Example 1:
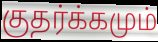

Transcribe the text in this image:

குதர்க்கமும்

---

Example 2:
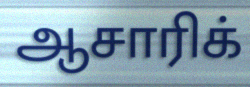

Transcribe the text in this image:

ஆசாரிக்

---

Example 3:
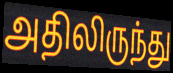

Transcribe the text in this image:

அதிலிருந்து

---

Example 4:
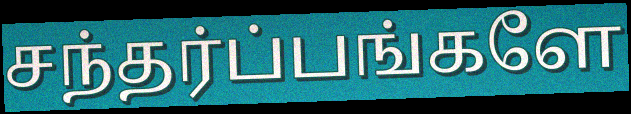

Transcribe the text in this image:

சந்தர்ப்பங்களே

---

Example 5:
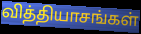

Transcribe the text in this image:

வித்தியாசங்கள்